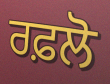
ਰਫ਼ਲੋ